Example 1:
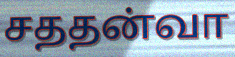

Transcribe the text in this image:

சததன்வா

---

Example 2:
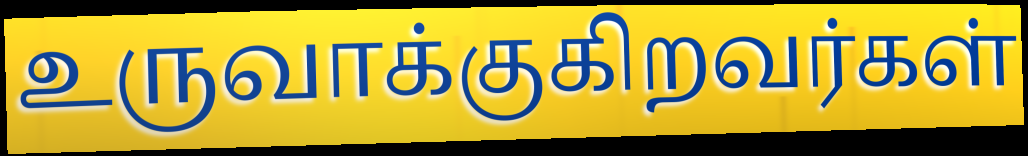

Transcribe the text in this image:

உருவாக்குகிறவர்கள்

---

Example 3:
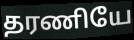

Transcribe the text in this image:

தரணியே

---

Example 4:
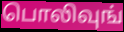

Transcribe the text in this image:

பொலிவுங்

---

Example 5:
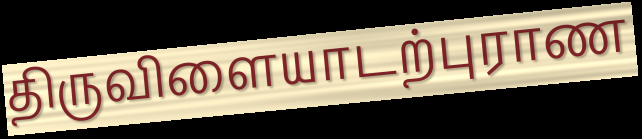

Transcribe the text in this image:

திருவிளையாடற்புராண